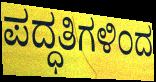
ಪದ್ಧತಿಗಳಿಂದ